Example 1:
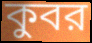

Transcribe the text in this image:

কুবর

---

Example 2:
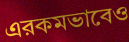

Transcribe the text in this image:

এরকমভাবেও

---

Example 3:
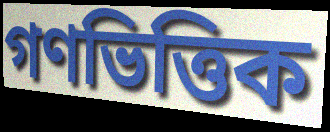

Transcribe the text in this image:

গণভিত্তিক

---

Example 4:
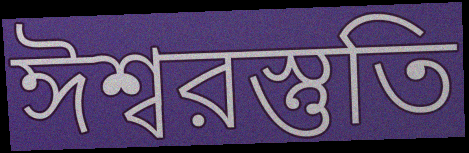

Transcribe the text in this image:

ঈশ্বরস্তুতি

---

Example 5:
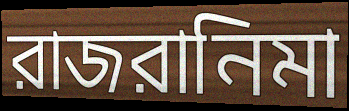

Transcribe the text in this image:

রাজরানিমা